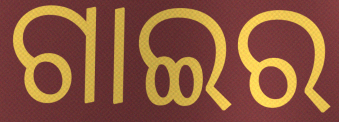
ଗାଇର